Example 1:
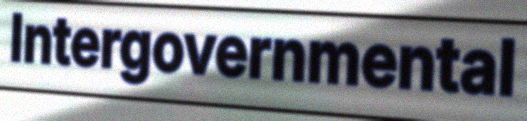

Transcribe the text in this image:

Intergovernmental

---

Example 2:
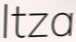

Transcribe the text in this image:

Itza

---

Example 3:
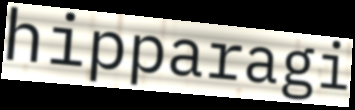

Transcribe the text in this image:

hipparagi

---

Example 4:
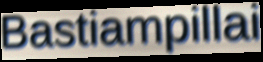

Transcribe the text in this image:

Bastiampillai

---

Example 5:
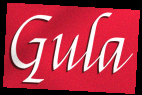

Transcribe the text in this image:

Gula